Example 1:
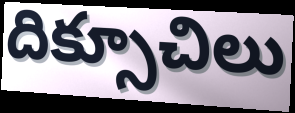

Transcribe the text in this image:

దిక్సూచిలు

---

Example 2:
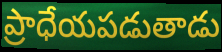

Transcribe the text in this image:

ప్రాధేయపడుతాడు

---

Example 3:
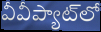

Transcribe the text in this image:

వీవీప్యాట్‌లో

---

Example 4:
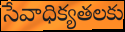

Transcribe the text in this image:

సేవాధిక్యతలకు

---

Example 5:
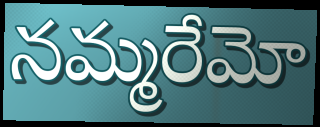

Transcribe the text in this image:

నమ్మరేమో